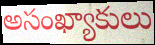
అసంఖ్యాకులు